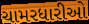
ચામરધારીઓ